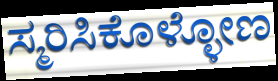
ಸ್ಮರಿಸಿಕೊಳ್ಳೋಣ